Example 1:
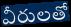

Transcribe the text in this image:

వీరులతో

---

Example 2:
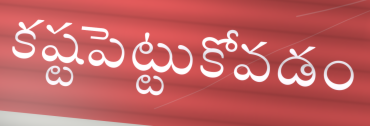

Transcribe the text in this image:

కష్టపెట్టుకోవడం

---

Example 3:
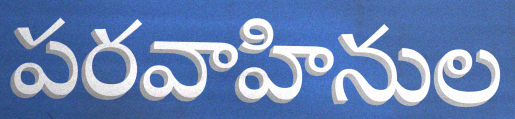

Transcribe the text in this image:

పరవాహినుల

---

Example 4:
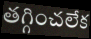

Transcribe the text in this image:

తగ్గించలేక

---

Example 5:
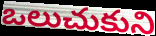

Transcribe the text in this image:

ఒలుచుకుని